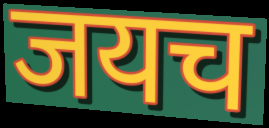
जयच